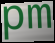
pm